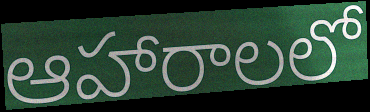
ఆహారాలలో